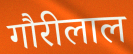
गौरीलाल